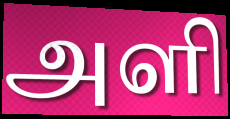
அளி